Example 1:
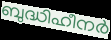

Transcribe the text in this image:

ബുദ്ധിഹീനർ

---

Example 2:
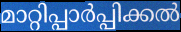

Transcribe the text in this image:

മാറ്റിപ്പാർപ്പിക്കൽ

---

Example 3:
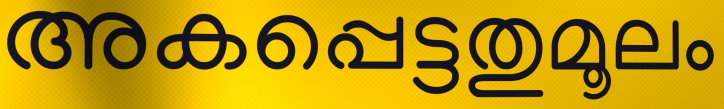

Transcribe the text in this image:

അകപ്പെട്ടതുമൂലം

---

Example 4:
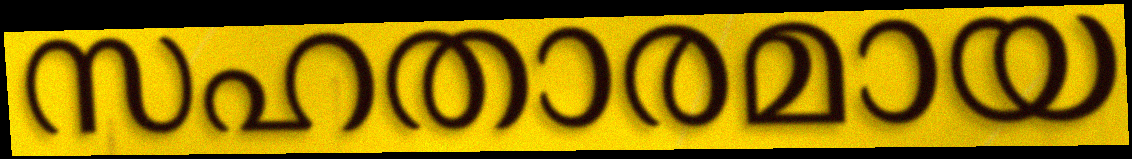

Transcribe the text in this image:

സഹതാരമായ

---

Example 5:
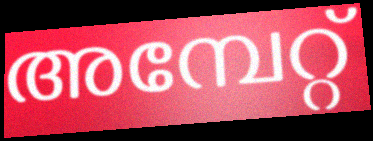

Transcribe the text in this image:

അമ്പേറ്റ്